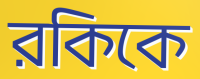
রকিকে